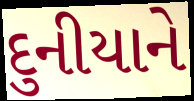
દુનીયાને